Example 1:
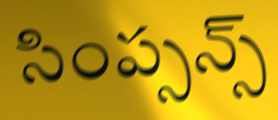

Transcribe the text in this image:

సింప్సన్స్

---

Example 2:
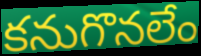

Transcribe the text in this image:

కనుగొనలేం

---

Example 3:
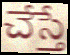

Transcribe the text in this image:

చేస్తే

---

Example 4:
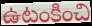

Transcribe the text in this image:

ఉటంకించి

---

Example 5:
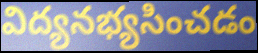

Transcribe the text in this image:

విద్యనభ్యసించడం